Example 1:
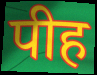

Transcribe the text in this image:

पीह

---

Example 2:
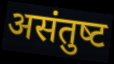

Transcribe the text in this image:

असंतुष्‍ट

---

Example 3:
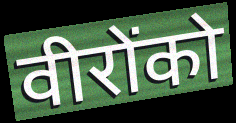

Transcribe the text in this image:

वीरोंको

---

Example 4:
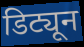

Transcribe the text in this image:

डिट्यून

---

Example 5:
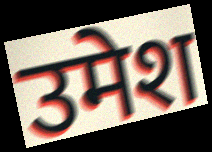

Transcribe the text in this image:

उमेश